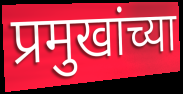
प्रमुखांच्या